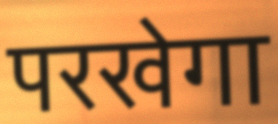
परखेगा